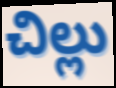
చిల్లు